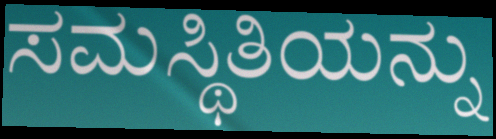
ಸಮಸ್ಥಿತಿಯನ್ನು